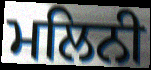
ਮਲਿਨੀ